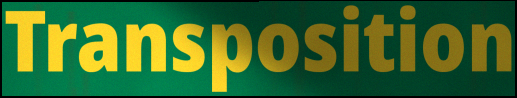
Transposition